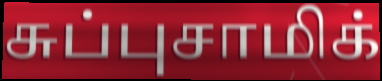
சுப்புசாமிக்